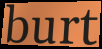
burt